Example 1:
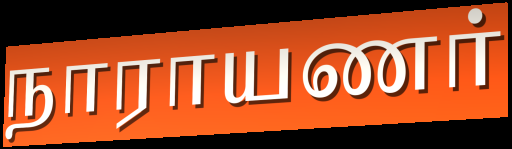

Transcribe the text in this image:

நாராயணர்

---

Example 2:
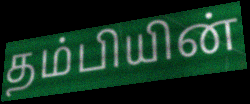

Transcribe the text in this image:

தம்பியின்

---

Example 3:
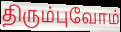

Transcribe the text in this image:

திரும்புவோம்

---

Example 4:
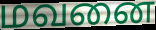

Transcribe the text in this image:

மவனை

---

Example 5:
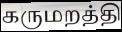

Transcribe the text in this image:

கருமறத்தி